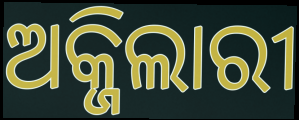
ଅକ୍ଜିଲାରୀ